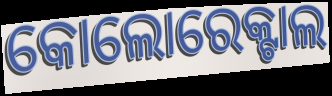
କୋଲୋରେକ୍ଟାଲ